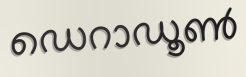
ഡെറാഡൂൺ